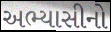
અભ્યાસીનો